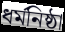
ধর্মনিষ্ঠা